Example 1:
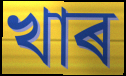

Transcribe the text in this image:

খাৰ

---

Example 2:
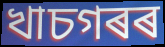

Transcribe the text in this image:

খাচগৰৰ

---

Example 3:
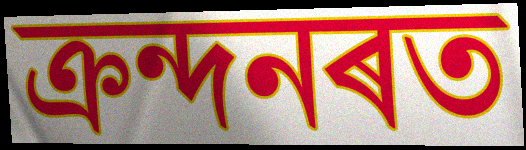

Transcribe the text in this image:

ক্ৰন্দনৰত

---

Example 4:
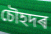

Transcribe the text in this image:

চৌহদৰ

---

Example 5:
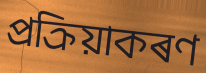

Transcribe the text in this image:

প্ৰক্ৰিয়াকৰণ